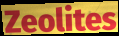
Zeolites